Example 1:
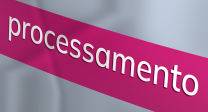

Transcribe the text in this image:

processamento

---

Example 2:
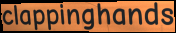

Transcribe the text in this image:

clappinghands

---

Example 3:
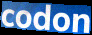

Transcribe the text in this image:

codon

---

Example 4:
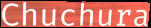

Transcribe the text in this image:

Chuchura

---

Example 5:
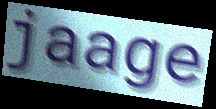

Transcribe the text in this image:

jaage